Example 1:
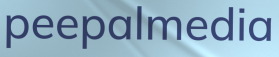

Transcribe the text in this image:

peepalmedia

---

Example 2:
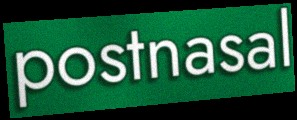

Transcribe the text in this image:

postnasal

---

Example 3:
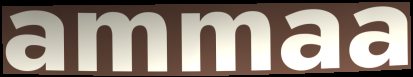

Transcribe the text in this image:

ammaa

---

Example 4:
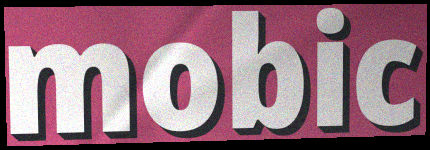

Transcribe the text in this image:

mobic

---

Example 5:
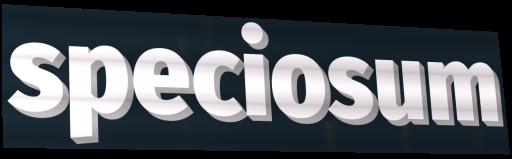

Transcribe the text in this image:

speciosum